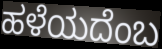
ಹಳೆಯದೆಂಬ